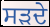
ਸੜਦੇ